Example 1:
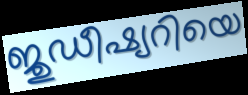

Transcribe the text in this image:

ജുഡീഷ്യറിയെ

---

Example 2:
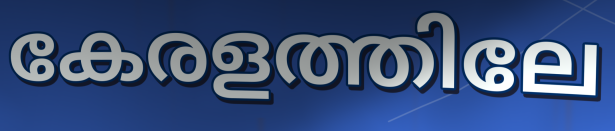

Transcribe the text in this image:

കേരളത്തിലേ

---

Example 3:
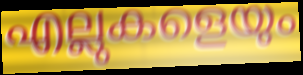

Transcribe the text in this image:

എല്ലുകളെയും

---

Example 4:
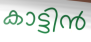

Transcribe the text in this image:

കാട്ടിൻ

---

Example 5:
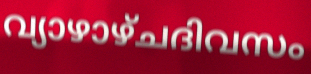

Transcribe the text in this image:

വ്യാഴാഴ്ചദിവസം